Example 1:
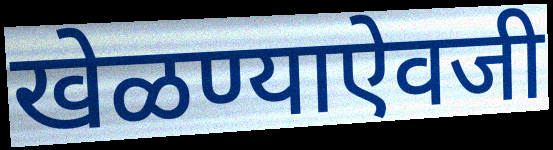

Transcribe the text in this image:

खेळण्याऐवजी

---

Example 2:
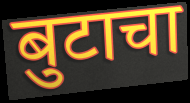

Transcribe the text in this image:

बुटाचा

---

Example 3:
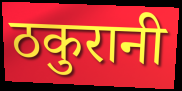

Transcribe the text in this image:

ठकुरानी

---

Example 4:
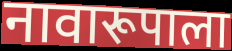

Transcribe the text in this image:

नावारूपाला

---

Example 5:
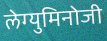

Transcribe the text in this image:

लेग्युमिनोजी